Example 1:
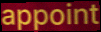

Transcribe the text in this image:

appoint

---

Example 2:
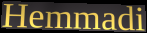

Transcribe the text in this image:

Hemmadi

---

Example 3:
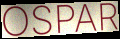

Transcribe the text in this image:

OSPAR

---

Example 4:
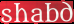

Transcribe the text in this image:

shabd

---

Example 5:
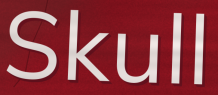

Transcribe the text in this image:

Skull